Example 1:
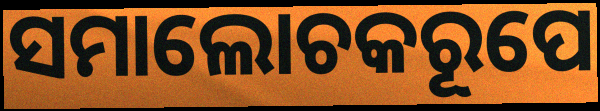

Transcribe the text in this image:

ସମାଲୋଚକରୂପେ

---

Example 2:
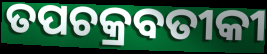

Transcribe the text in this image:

ତପଚକ୍ରବତୀକୀ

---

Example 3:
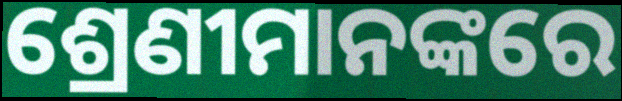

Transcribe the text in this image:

ଶ୍ରେଣୀମାନଙ୍କରେ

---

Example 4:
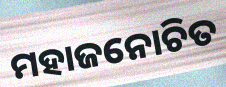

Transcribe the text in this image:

ମହାଜନୋଚିତ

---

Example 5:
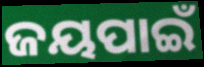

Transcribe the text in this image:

ଜୟପାଇଁ